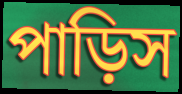
পাড়িস